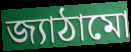
জ্যাঠামো